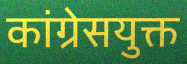
कांग्रेसयुक्त